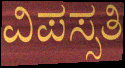
ವಿಪಸ್ಸತಿ